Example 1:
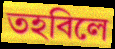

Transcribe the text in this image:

তহবিলে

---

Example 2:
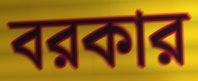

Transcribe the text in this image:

বরকার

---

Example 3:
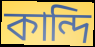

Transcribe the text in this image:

কান্দি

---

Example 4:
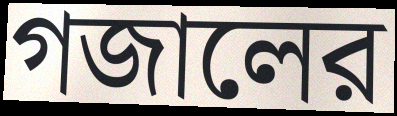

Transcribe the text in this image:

গজালের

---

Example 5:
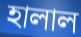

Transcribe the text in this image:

হালাল